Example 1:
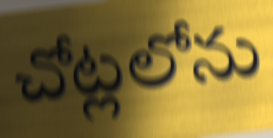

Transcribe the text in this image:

చోట్లలోను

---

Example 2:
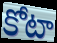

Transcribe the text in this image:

కోటా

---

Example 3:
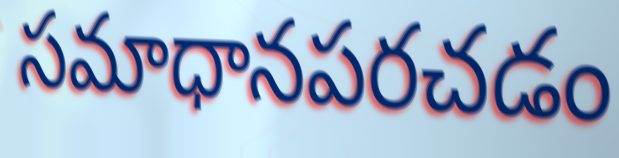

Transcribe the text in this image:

సమాధానపరచడం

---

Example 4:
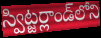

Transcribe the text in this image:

స్విట్జర్లాండ్‌లోని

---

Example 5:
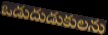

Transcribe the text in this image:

ఒడుదుడుకులను